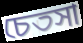
চেতসা